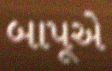
બાપૂએ